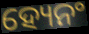
ହ୍ୟେନଂ